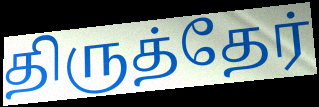
திருத்தேர்